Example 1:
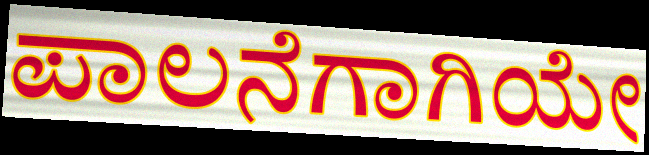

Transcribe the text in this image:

ಪಾಲನೆಗಾಗಿಯೇ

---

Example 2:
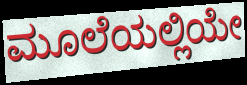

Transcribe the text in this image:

ಮೂಲೆಯಲ್ಲಿಯೇ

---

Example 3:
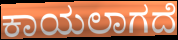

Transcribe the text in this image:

ಕಾಯಲಾಗದೆ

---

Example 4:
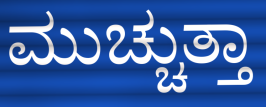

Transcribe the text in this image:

ಮುಚ್ಚುತ್ತಾ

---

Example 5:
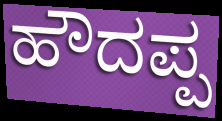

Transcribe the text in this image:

ಹೌದಪ್ಪ